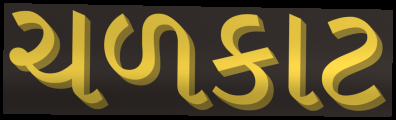
ચળકાટ